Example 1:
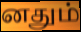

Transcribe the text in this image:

னதும்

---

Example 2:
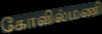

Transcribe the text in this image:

கோவில்மணி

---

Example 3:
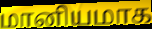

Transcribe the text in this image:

மானியமாக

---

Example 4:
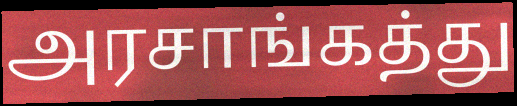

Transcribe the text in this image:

அரசாங்கத்து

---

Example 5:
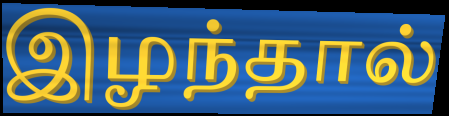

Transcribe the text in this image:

இழந்தால்